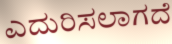
ಎದುರಿಸಲಾಗದೆ